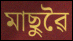
মাছুৱৈ